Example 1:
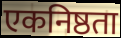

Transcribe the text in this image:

एकनिष्ठता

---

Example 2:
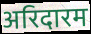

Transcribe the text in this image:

अरिदारम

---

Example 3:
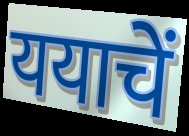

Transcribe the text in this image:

ययाचें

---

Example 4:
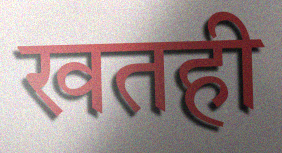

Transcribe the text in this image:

खतही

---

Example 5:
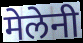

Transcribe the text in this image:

मेलेनी